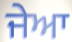
ਜੇਆ